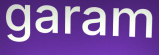
garam